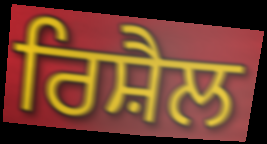
ਰਿਸ਼ੈਲ